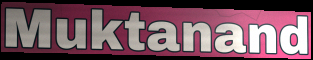
Muktanand